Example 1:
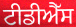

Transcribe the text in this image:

ਟੀਡੀਐੱਸ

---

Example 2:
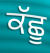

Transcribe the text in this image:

ਕੱਛੂ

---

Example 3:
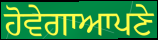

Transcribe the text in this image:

ਹੋਵੇਗਾਆਪਣੇ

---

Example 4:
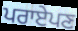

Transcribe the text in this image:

ਪਰਾਏਪਣ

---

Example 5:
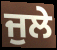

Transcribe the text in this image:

ਜੁਲੇ